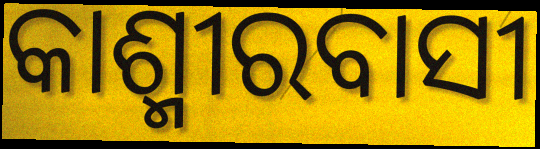
କାଶ୍ମୀରବାସୀ